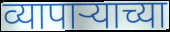
व्यापाऱ्याच्या